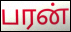
பரன்